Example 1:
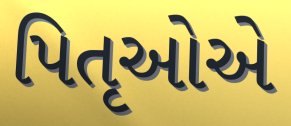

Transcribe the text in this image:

પિતૃઓએ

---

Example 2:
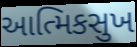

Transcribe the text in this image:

આત્મિકસુખ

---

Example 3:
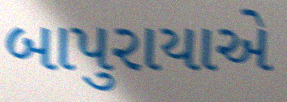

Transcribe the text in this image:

બાપુરાયાએ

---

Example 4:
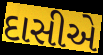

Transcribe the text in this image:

દાસીએ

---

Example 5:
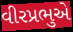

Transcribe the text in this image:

વીરપ્રભુએ